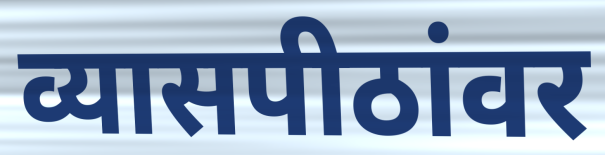
व्यासपीठांवर